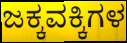
ಜಕ್ಕವಕ್ಕಿಗಳ